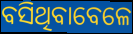
ବସିଥିବାବେଳେ